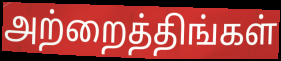
அற்றைத்திங்கள்